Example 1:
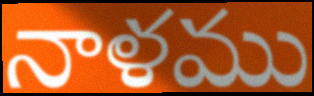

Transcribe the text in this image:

నాళము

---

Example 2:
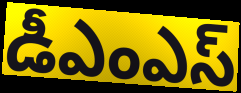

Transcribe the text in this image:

డీఎంఎస్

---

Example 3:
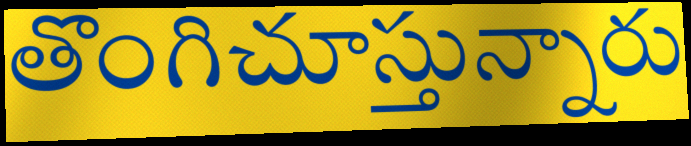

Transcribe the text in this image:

తొంగిచూస్తున్నారు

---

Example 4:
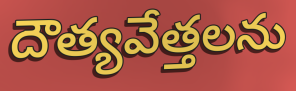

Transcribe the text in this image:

దౌత్యవేత్తలను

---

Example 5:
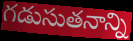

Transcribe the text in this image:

గడుసుతనాన్ని